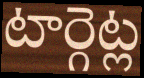
టార్గెట్ల